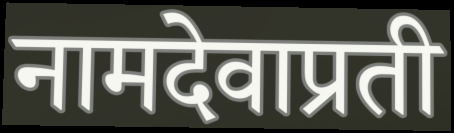
नामदेवाप्रती